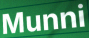
Munni